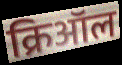
क्रिऑल